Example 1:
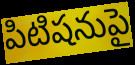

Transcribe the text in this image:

పిటిషనుపై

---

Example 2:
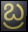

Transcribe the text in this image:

బ్ర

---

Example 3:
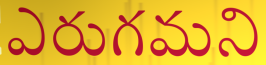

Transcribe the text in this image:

ఎరుగమని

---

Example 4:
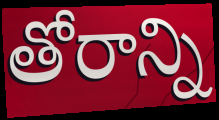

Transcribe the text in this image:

తోరాన్ని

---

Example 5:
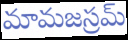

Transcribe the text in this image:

మామజస్రమ్